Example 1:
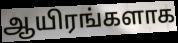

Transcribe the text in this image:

ஆயிரங்களாக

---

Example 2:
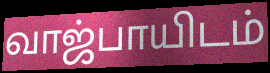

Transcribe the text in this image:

வாஜ்பாயிடம்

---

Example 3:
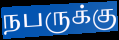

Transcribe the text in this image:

நபருக்கு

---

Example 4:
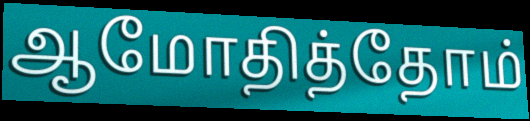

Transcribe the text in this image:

ஆமோதித்தோம்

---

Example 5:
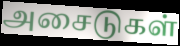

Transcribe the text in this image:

அசைடுகள்